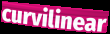
curvilinear